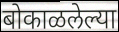
बोकाळलेल्या